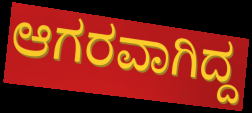
ಆಗರವಾಗಿದ್ದ